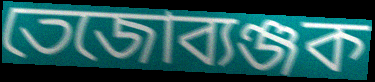
তেজোব্যঞ্জক